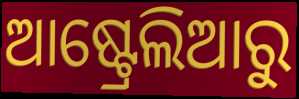
ଆଷ୍ଟ୍ରେଲିଆରୁ